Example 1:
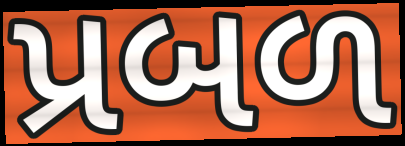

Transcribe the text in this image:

પ્રબળ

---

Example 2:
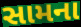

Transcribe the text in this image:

સામના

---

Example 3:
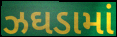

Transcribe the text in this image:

ઝઘડામાં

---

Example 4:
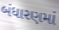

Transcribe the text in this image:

બંધારણમાં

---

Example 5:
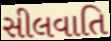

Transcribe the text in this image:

સીલવાતિ